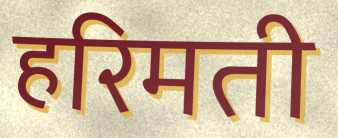
हरिमती